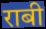
राबी